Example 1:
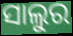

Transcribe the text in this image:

ସାଲୁର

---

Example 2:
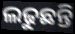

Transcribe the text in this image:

ଲଢୁଛନ୍ତି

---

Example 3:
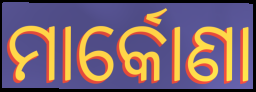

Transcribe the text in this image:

ମାର୍କୋଣା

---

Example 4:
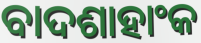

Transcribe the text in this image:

ବାଦଶାହାଂକ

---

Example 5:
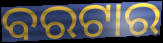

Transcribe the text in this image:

ବରଟାର